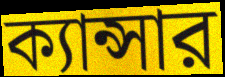
ক্যান্সার